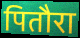
पितौरा